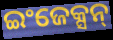
ଇଂଜେକ୍ସନ୍